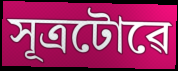
সূত্ৰটোৱে